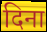
दिना